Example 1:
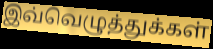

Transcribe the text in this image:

இவ்வெழுத்துக்கள்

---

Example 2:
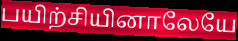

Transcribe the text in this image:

பயிற்சியினாலேயே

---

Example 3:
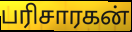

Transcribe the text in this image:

பரிசாரகன்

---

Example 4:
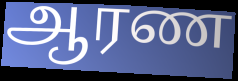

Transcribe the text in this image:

ஆரண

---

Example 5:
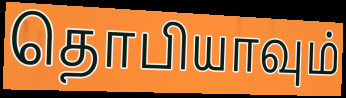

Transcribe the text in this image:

தொபியாவும்